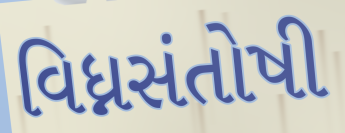
વિધ્નસંતોષી